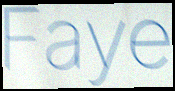
Faye